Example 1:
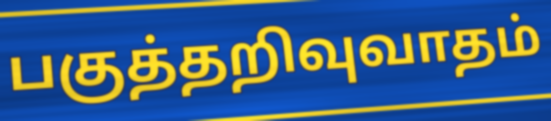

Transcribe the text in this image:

பகுத்தறிவுவாதம்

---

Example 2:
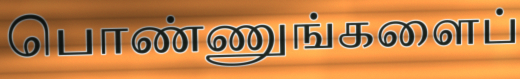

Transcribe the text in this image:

பொண்ணுங்களைப்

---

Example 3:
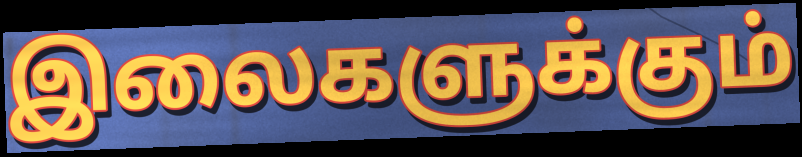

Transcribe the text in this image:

இலைகளுக்கும்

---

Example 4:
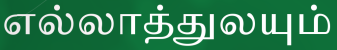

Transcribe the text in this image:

எல்லாத்துலயும்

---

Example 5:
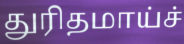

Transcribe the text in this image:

துரிதமாய்ச்